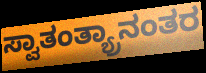
ಸ್ವಾತಂತ್ಯ್ರಾನಂತರ